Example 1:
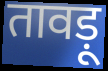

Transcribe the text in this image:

तावड़ू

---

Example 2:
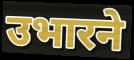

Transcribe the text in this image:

उभारने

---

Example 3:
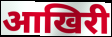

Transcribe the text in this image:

आखिरी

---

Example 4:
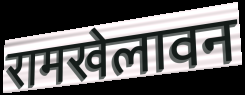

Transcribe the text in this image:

रामखेलावन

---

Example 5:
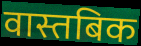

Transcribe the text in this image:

वास्तबिक